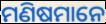
ମଣିଷମାନେ